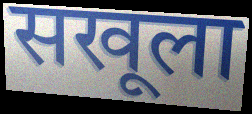
सखूला